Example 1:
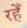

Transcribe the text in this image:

रहेँ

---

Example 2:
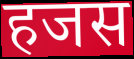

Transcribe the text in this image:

हजस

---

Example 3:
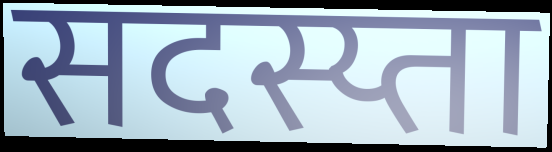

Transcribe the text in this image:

सदस्य्ता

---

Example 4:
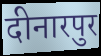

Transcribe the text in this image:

दीनारपुर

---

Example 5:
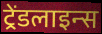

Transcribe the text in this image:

ट्रेंडलाइन्स